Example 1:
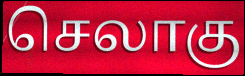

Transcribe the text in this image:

செலாகு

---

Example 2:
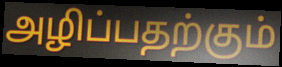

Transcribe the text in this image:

அழிப்பதற்கும்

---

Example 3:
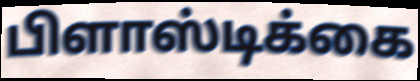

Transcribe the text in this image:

பிளாஸ்டிக்கை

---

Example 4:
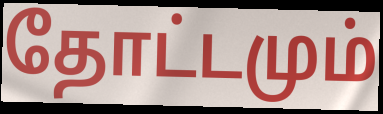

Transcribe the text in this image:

தோட்டமும்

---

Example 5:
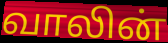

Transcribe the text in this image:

வாலின்